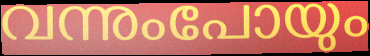
വന്നുംപോയും